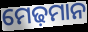
ମେଢ଼ମାନ